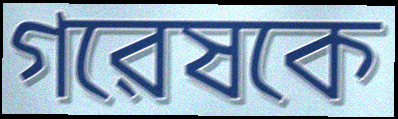
গৱেষকে